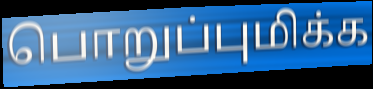
பொறுப்புமிக்க